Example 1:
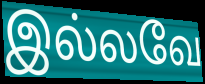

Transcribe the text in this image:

இல்லவே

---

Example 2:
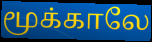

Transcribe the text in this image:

மூக்காலே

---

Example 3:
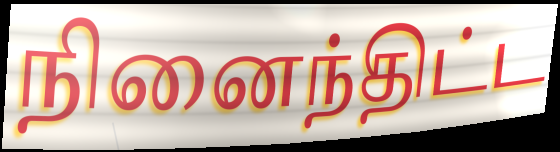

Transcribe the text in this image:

நினைந்திட்ட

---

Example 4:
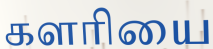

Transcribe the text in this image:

களரியை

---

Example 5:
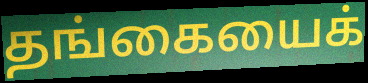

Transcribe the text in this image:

தங்கையைக்